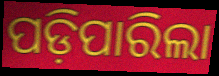
ପଡ଼ିପାରିଲା